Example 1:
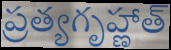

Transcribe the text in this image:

ప్రత్యగృహ్ణాత్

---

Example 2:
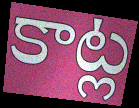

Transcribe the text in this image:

కాట్ల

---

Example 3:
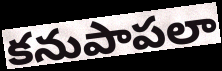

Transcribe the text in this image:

కనుపాపలా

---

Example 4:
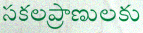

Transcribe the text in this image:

సకలప్రాణులకు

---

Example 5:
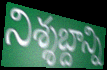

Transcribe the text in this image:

నిశ్శబ్దాన్ని